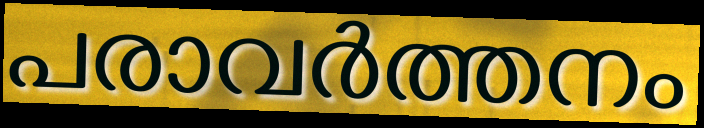
പരാവർത്തനം